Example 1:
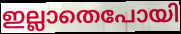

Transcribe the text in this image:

ഇല്ലാതെപോയി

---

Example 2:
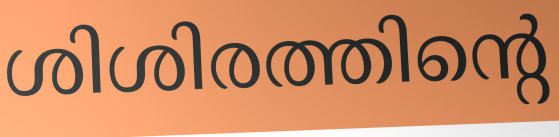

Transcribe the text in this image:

ശിശിരത്തിന്റെ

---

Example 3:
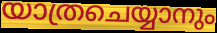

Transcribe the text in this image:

യാത്രചെയ്യാനും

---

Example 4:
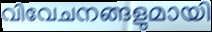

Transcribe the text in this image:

വിവേചനങ്ങളുമായി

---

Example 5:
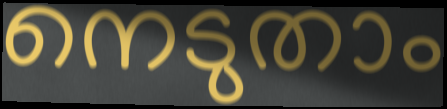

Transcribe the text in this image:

നെടുതാം